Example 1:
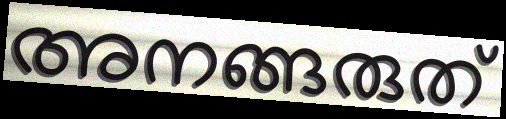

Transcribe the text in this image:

അനങ്ങരുത്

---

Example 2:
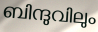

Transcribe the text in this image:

ബിന്ദുവിലും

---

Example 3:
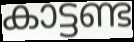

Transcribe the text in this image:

കാട്ടണ്ട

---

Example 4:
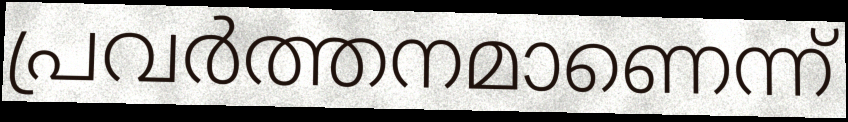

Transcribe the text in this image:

പ്രവർത്തനമാണെന്ന്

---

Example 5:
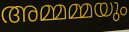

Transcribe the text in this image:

അമ്മമ്മയും